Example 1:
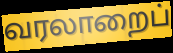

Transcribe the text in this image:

வரலாறைப்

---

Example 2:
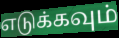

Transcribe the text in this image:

எடுக்கவும்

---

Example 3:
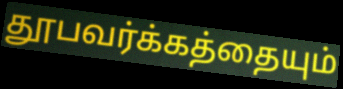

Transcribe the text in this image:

தூபவர்க்கத்தையும்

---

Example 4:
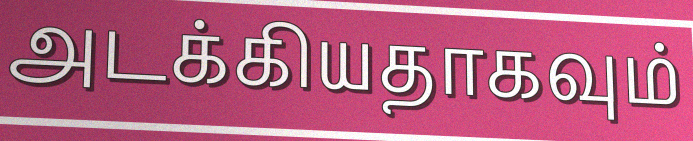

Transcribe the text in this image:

அடக்கியதாகவும்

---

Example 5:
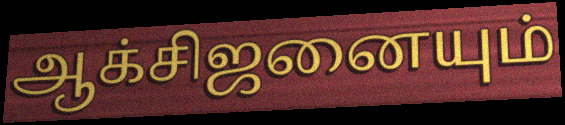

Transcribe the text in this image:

ஆக்சிஜனையும்